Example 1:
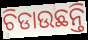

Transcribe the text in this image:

ଚିଡାଉଛନ୍ତି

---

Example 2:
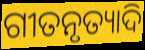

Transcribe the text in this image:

ଗୀତନୃତ୍ୟାଦି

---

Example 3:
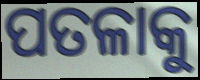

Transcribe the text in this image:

ପତଳାକୁ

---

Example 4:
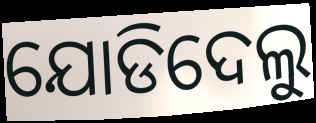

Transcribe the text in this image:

ଯୋଡିଦେଲୁ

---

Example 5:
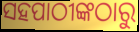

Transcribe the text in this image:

ସହପାଠୀଙ୍କଠାରୁ